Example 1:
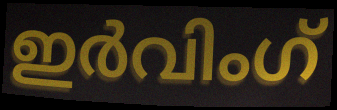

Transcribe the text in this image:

ഇർവിംഗ്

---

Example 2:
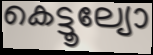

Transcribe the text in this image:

കെട്ടൂല്യോ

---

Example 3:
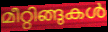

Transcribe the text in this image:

മീറ്റിങ്ങുകൾ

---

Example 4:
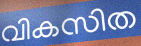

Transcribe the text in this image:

വികസിത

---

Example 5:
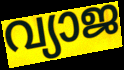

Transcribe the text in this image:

വ്യാജ